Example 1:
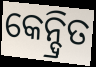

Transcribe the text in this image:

କେନ୍ଦ୍ରିତ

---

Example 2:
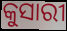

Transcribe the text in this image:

କୁସାରୀ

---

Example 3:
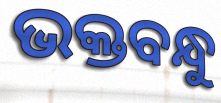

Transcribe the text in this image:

ଭକ୍ତବନ୍ଧୁ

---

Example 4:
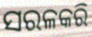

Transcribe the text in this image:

ସରଳକରି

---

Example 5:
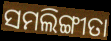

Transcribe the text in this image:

ସମଲିଙ୍ଗୀତା